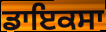
ਡਾਇਕਸਾ